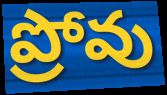
ప్రోవు